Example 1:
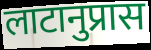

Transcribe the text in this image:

लाटानुप्रास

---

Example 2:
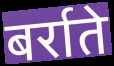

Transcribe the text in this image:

बर्राते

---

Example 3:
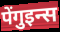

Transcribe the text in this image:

पेंगुइन्स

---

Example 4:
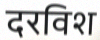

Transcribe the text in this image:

दरविश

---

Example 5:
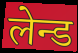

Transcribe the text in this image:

लेन्ड